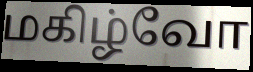
மகிழ்வோ